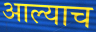
आल्याच